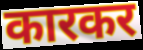
कारकर